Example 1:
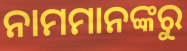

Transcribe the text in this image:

ନାମମାନଙ୍କରୁ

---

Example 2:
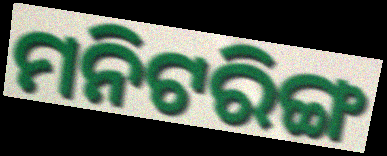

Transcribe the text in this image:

ମନିଟରିଙ୍ଗ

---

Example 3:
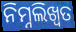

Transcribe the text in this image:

ନିମ୍ନଲିଖ୍ବତ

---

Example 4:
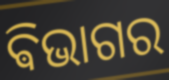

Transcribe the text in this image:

ଵିଭାଗର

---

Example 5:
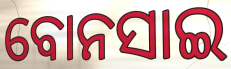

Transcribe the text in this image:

ବୋନସାଇ